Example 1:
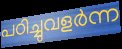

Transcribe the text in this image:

പഠിച്ചുവളർന്ന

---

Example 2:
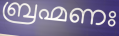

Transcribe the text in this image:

ബ്രഹ്മണഃ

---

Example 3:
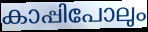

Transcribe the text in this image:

കാപ്പിപോലും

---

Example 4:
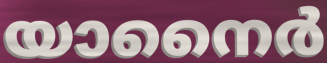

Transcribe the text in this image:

യാനൈർ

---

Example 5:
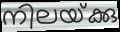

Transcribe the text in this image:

നിലയ്‌ക്കു